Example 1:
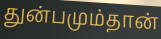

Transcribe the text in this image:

துன்பமும்தான்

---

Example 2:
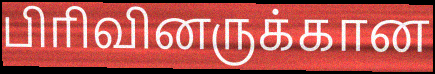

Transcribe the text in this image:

பிரிவினருக்கான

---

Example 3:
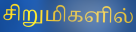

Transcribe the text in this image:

சிறுமிகளில்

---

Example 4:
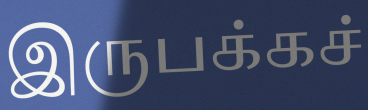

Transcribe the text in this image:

இருபக்கச்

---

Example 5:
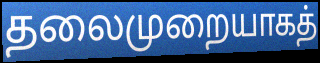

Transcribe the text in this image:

தலைமுறையாகத்